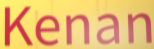
Kenan